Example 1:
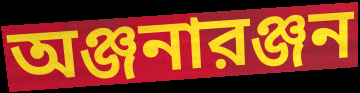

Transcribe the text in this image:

অঞ্জনারঞ্জন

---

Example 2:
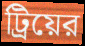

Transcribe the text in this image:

ট্রিয়ের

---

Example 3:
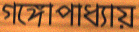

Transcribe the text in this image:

গঙ্গোপাধ্যায়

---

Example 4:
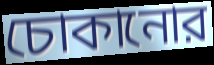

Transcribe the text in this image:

চোকানোর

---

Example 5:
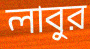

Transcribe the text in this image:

লাবুর